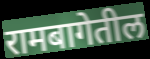
रामबागेतील